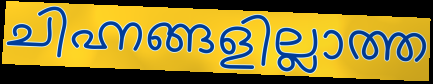
ചിഹ്നങ്ങളില്ലാത്ത